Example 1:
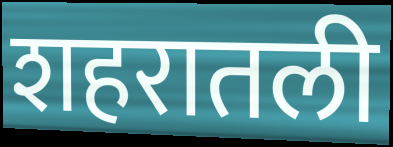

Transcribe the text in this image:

शहरातली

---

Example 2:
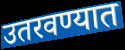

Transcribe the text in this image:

उतरवण्यात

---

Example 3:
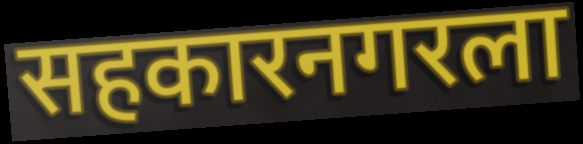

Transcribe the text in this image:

सहकारनगरला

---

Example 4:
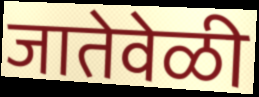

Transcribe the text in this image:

जातेवेळी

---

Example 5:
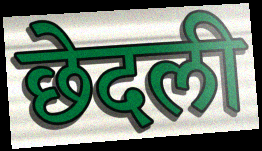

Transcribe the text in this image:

छेदली